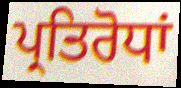
ਪ੍ਰਤਿਰੋਧਾਂ